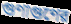
গুণাগুণের